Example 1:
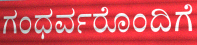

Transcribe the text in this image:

ಗಂಧರ್ವರೊಂದಿಗೆ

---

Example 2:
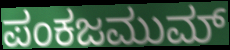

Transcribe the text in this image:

ಪಂಕಜಮುಮ್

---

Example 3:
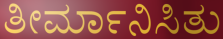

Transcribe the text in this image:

ತೀರ್ಮಾನಿಸಿತು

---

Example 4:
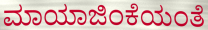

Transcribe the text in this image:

ಮಾಯಾಜಿಂಕೆಯಂತೆ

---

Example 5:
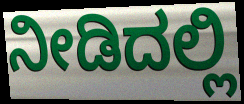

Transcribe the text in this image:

ನೀಡಿದಲ್ಲಿ